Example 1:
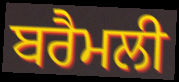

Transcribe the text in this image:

ਬਰੈਮਲੀ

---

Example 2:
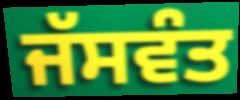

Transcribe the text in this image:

ਜੱਸਵੰਤ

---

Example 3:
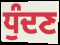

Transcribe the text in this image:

ਧੁੰਦਣ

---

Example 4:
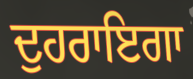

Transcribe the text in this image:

ਦੁਹਰਾਇਗਾ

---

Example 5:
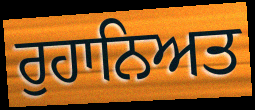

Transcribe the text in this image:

ਰੁਹਾਨਿਅਤ